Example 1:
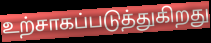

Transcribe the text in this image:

உற்சாகப்படுத்துகிறது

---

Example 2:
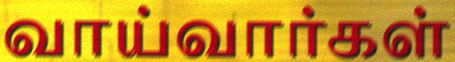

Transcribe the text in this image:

வாய்வார்கள்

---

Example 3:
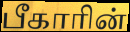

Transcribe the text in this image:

பீகாரின்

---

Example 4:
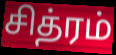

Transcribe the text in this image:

சித்ரம்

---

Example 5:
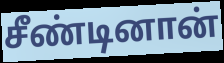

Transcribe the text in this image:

சீண்டினான்